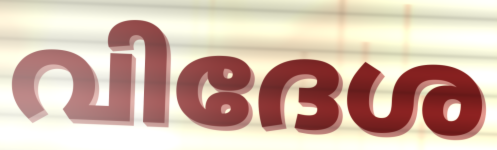
വിദേശ